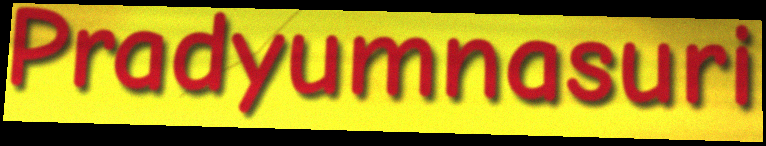
Pradyumnasuri